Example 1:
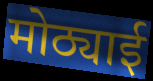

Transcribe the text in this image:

मोठ्याई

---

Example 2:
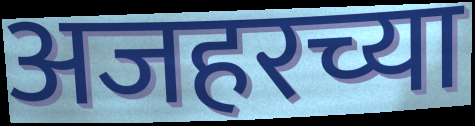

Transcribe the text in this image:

अजहरच्या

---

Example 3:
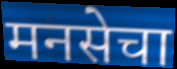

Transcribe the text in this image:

मनसेचा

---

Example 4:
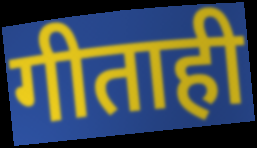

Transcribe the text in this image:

गीताही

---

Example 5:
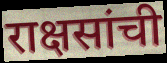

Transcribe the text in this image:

राक्षसांची